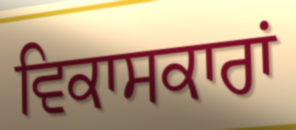
ਵਿਕਾਸਕਾਰਾਂ